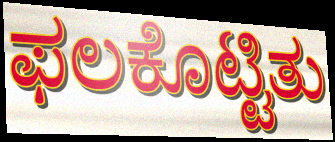
ಫಲಕೊಟ್ಟಿತು